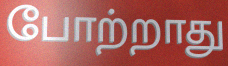
போற்றாது